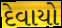
દેવાયો